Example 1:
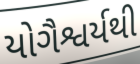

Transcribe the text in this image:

યોગૈશ્વર્યથી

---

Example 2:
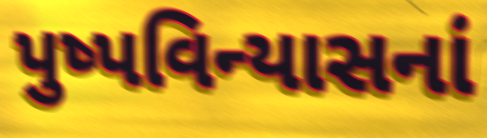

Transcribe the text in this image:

પુષ્પવિન્યાસનાં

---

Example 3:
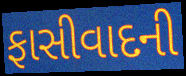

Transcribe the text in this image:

ફાસીવાદની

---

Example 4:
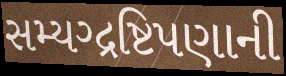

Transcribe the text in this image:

સમ્યગ્દ્રષ્ટિપણાની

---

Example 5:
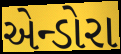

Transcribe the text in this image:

એન્ડોરા